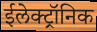
ईलेक्ट्रॉनिक